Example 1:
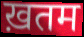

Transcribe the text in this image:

ख़तम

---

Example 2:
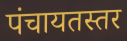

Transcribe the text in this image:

पंचायतस्तर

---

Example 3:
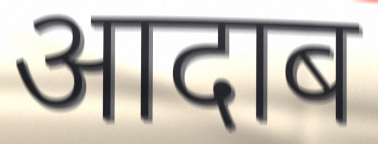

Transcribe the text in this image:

आदाब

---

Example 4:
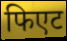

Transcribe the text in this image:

फिएट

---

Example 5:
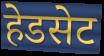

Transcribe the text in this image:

हेडसेट